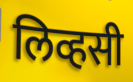
लिव्हसी